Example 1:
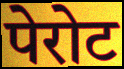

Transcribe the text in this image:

पेरोट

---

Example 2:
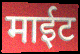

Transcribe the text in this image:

माईट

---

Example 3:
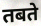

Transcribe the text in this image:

तबते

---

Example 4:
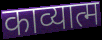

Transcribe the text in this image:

काव्यात्म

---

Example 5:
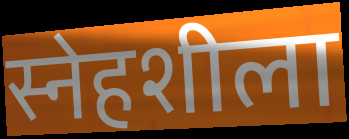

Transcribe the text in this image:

स्नेहशीला